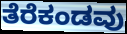
ತೆರೆಕಂಡವು